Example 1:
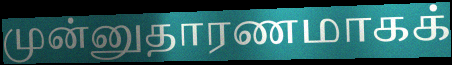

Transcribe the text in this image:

முன்னுதாரணமாகக்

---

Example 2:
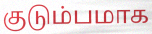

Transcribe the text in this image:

குடும்பமாக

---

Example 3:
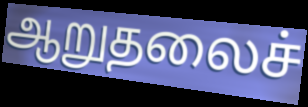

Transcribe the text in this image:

ஆறுதலைச்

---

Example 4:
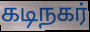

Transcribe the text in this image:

கடிநகர்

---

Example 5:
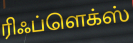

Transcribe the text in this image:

ரிஃப்ளெக்ஸ்